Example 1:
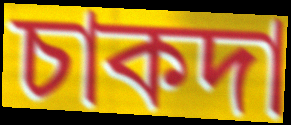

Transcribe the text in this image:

চাকদা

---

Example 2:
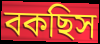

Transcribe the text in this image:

বকছিস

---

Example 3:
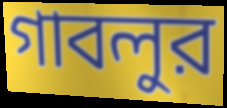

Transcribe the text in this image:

গাবলুর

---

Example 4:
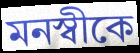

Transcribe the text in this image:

মনস্বীকে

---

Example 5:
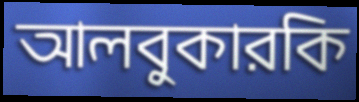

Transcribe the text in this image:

আলবুকারকি